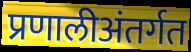
प्रणालीअंतर्गत